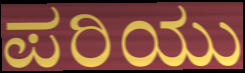
ಪರಿಯು